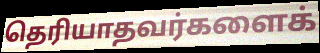
தெரியாதவர்களைக்